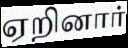
ஏறினார்